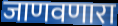
जाणवणारा